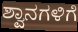
ಶ್ವಾನಗಳಿಗೆ